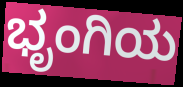
ಭೃಂಗಿಯ